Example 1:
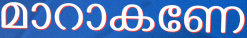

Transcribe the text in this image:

മാറാകണേ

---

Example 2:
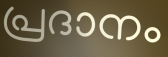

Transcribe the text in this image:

പ്രദാനം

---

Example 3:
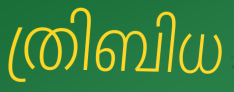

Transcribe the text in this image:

ത്രിബിധ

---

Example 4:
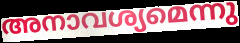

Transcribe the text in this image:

അനാവശ്യമെന്നു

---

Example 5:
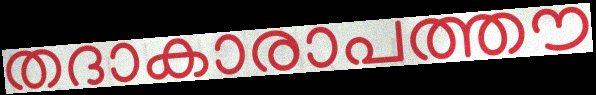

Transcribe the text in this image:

തദാകാരാപത്തൗ